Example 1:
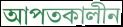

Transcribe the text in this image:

আপতকালীন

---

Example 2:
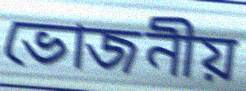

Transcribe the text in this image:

ভোজনীয়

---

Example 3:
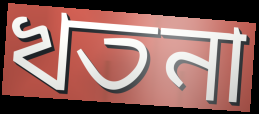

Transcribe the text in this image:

খতনা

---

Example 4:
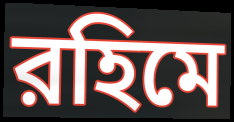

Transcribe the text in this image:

রহিমে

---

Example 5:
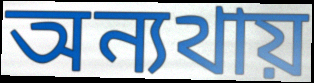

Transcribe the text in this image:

অন্যথায়